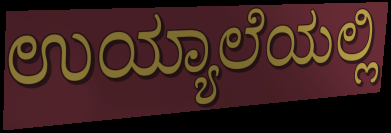
ಉಯ್ಯಾಲೆಯಲ್ಲಿ